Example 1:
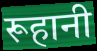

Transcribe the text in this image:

रूहानी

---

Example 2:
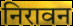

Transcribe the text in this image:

निरावन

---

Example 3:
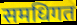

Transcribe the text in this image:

समधिगत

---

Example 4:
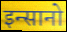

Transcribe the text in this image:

इन्सानो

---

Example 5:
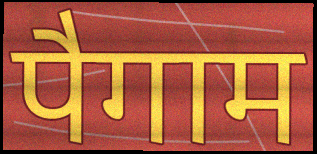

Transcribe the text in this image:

पैगाम